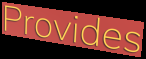
Provides